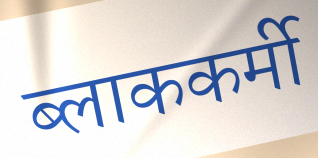
ब्लाककर्मी